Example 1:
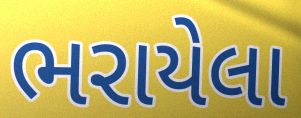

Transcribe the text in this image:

ભરાયેલા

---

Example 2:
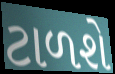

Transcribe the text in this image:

ટાળશે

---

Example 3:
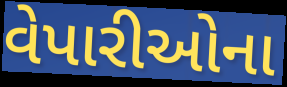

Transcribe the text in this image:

વેપારીઓના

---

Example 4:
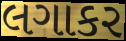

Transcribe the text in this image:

લગાકર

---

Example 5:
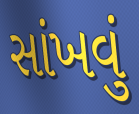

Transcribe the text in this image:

સાંખવું